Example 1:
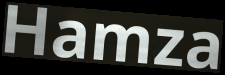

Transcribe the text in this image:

Hamza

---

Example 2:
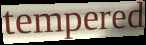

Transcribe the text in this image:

tempered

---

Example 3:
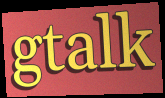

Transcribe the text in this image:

gtalk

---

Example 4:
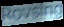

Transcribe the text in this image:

Rovsing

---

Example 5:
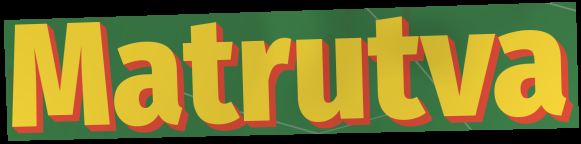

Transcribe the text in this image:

Matrutva